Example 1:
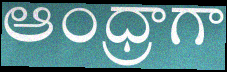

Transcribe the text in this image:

ఆంధ్రాగా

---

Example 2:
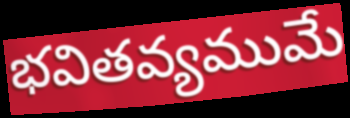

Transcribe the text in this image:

భవితవ్యముమే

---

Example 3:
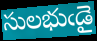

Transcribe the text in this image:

సులభుఁడై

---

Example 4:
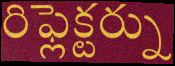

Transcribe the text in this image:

రిఫ్లెక్టర్ను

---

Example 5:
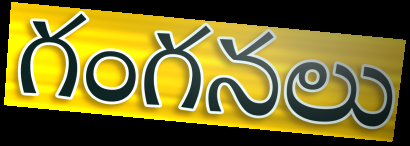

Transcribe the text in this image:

గంగనలు